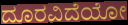
ದೂರವಿದೆಯೋ